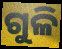
ଗୁଳି